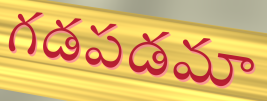
గడపడమా